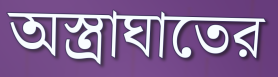
অস্ত্রাঘাতের